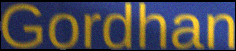
Gordhan